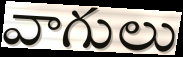
వాగులు